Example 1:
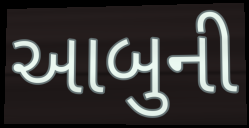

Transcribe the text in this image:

આબુની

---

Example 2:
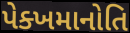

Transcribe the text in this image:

પેક્ખમાનોતિ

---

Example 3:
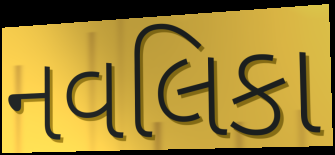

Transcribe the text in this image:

નવલિકા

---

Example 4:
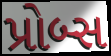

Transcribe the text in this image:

પ્રોબ્સ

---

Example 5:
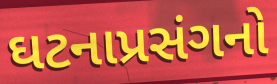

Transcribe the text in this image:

ઘટનાપ્રસંગનો